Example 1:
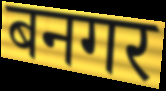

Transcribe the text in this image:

बनगर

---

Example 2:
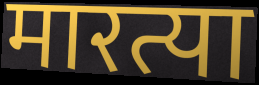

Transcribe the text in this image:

मारत्या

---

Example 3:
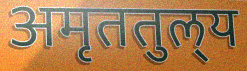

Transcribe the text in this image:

अमृततुल्य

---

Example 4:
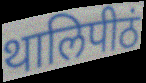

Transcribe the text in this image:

थालिपीठं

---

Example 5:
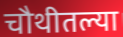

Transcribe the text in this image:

चौथीतल्या